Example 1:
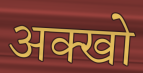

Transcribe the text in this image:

अक्खो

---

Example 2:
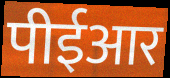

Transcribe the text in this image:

पीईआर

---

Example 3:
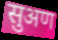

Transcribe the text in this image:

सुअण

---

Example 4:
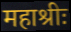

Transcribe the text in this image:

महाश्रीः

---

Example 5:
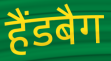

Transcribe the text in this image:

हैंडबैग